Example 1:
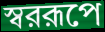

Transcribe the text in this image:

স্বররূপে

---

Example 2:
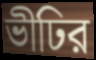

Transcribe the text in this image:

ভীঢির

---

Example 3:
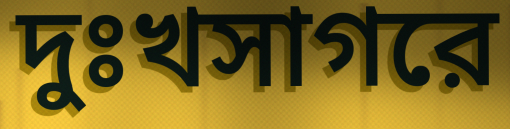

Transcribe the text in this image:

দুঃখসাগরে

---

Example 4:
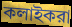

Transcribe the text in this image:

কলাইকরা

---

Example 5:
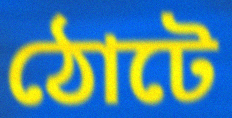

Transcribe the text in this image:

ঠোটে